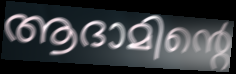
ആദാമിന്റെ